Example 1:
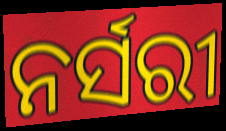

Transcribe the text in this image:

ନର୍ସରୀ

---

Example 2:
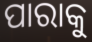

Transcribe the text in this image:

ପାରାକୁ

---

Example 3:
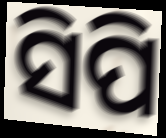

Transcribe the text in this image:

ସିପି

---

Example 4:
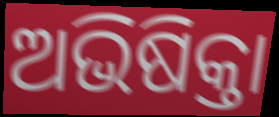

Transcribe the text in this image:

ଅଭିଷିକ୍ତା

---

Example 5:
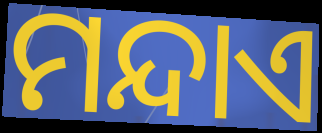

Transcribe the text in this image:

ମନ୍ଦାଏ